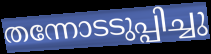
തന്നോടടുപ്പിച്ചു